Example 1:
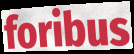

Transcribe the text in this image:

foribus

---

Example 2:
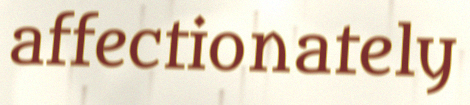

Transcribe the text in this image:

affectionately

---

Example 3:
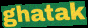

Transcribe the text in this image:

ghatak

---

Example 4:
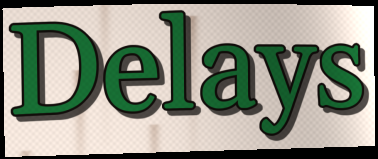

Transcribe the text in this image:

Delays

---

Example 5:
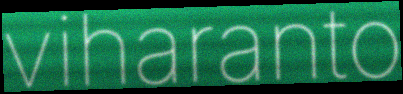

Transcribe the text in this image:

viharanto